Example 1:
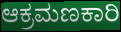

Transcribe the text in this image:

ಆಕ್ರಮಣಕಾರಿ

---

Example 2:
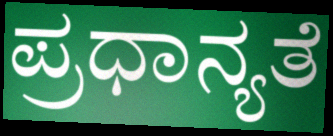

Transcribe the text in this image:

ಪ್ರಧಾನ್ಯತೆ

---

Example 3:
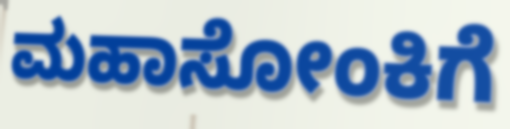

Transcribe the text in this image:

ಮಹಾಸೋಂಕಿಗೆ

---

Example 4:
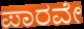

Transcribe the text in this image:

ಪಾರವೇ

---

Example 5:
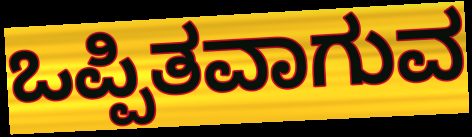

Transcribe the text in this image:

ಒಪ್ಪಿತವಾಗುವ